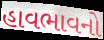
હાવભાવનો